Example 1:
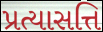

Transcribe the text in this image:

પ્રત્યાસત્તિ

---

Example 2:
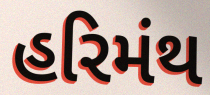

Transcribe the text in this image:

હરિમંથ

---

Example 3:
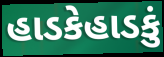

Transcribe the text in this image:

હાડકેહાડકું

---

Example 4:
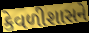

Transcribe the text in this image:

કેવળીશાસને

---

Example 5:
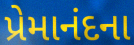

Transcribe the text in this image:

પ્રેમાનંદના